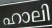
ഹാലി